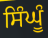
ਸਿੰਘੂੰ